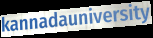
kannadauniversity